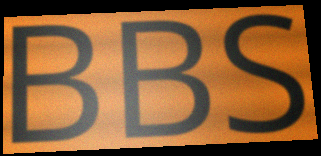
BBS